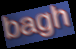
bagh